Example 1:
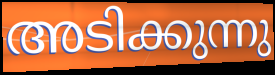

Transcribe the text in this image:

അടിക്കുന്നു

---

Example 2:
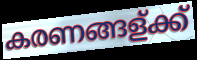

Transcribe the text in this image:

കരണങ്ങള്ക്ക്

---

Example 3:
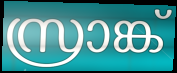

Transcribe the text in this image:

സ്രാങ്ക്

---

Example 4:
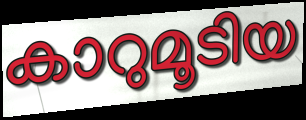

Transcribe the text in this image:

കാറുമൂടിയ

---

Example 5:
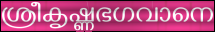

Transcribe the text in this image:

ശ്രീകൃഷ്ണഭഗവാനെ